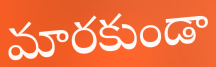
మారకుండా